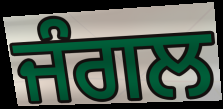
ਜੰਗਲ